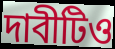
দাবীটিও